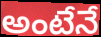
అంటేనే